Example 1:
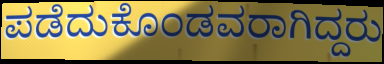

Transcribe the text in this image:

ಪಡೆದುಕೊಂಡವರಾಗಿದ್ದರು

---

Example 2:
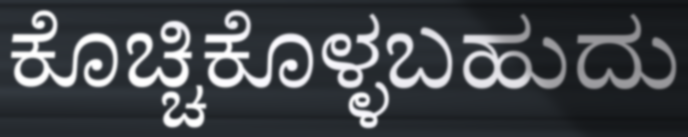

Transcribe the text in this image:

ಕೊಚ್ಚಿಕೊಳ್ಳಬಹುದು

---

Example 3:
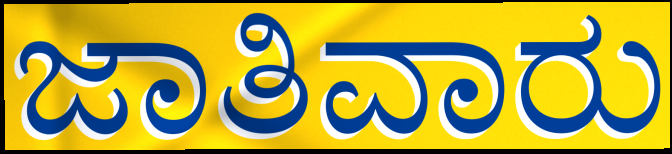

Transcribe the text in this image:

ಜಾತಿವಾರು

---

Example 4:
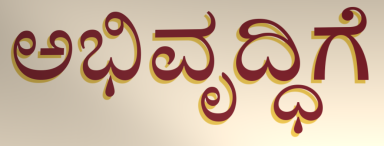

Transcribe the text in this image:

ಅಭಿವೃದ್ಧಿಗೆ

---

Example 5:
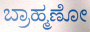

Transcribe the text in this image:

ಬ್ರಾಹ್ಮಣೋ